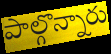
పాల్గొన్నారు